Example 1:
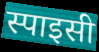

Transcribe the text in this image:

स्पाइसी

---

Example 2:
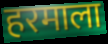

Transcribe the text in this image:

हरमाला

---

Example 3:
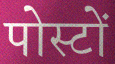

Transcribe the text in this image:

पोस्टों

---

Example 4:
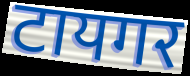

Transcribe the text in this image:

टायगर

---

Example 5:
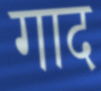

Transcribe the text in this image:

गाद